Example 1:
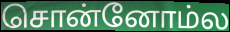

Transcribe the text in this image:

சொன்னோம்ல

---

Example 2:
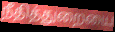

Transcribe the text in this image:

நீதித்துறையை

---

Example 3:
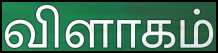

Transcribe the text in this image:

விளாகம்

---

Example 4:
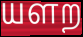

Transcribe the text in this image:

யளற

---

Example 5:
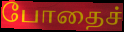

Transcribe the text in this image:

போதைச்